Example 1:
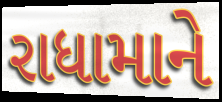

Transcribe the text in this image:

રાધામાને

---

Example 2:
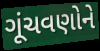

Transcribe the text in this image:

ગૂંચવણોને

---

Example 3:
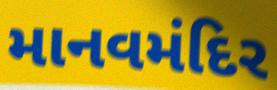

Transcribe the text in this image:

માનવમંદિર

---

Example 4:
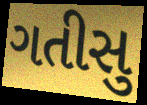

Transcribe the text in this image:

ગતીસુ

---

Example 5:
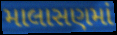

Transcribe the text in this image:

માલાસણમાં